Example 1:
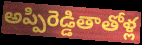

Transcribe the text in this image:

అప్పిరెడ్డితాతోళ్ల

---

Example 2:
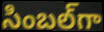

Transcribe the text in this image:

సింబల్‌గా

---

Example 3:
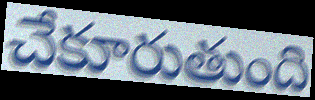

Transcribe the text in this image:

చేకూరుతుంది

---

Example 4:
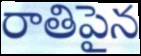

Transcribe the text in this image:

రాతిపైన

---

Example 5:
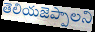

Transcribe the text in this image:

తెలియజెప్పాలని